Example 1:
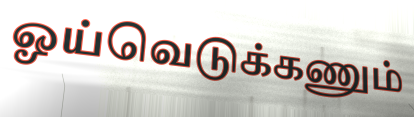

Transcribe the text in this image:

ஓய்வெடுக்கணும்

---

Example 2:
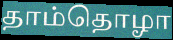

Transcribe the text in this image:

தாம்தொழா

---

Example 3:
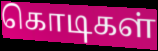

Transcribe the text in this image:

கொடிகள்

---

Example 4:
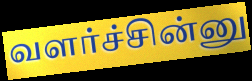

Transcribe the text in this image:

வளர்ச்சின்னு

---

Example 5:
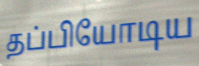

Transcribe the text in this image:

தப்பியோடிய